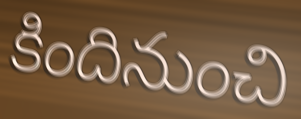
కిందినుంచి